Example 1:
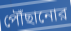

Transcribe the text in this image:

পৌঁছানোর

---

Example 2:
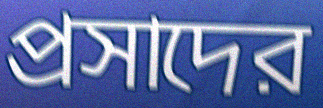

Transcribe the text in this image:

প্রসাদের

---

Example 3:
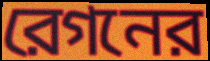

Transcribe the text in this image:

রেগনের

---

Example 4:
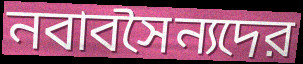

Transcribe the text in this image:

নবাবসৈন্যদের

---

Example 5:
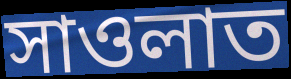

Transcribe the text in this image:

সাওলাত